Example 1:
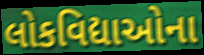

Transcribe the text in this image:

લોકવિદ્યાઓના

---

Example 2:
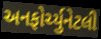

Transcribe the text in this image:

અનફોર્ચ્યુનેટલી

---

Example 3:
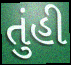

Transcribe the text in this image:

તુંહી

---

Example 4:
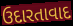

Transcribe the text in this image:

ઉદારતાવાદ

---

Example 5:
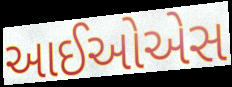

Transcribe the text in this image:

આઈઓએસ